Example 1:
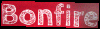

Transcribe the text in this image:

Bonfire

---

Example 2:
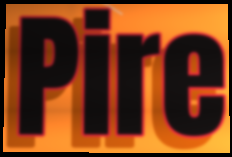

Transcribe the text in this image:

Pire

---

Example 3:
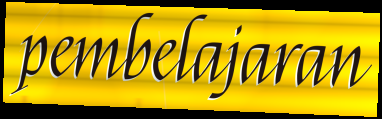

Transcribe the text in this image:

pembelajaran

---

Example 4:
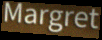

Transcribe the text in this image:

Margret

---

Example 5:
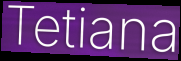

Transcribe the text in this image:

Tetiana